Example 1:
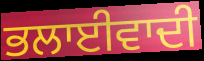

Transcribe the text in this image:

ਭਲਾਈਵਾਦੀ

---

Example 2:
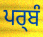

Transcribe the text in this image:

ਪਰ੍ਬੰ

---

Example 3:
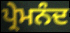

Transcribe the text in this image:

ਪ੍ਰੇਮਨੰਦ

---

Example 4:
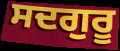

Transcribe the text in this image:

ਸਦਗੁਰੂ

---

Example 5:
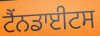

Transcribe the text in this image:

ਟੈਂਨਡਾਈਟਸ